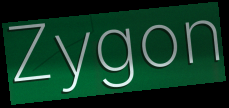
Zygon